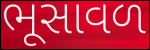
ભૂસાવળ